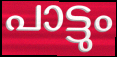
പാട്ടും